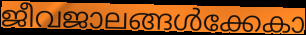
ജീവജാലങ്ങൾക്കേകാ